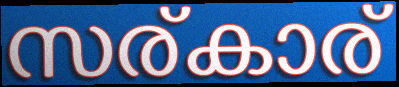
സര്കാര്